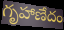
గృహాణేదం